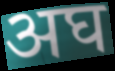
अघ